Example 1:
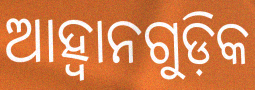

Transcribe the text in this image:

ଆହ୍ବାନଗୁଡ଼ିକ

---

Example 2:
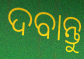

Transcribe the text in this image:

ଦବାନ୍ତୁ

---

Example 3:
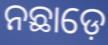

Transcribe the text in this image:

ନଛାଡ଼େ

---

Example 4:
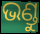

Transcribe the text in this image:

ଭଣ୍ଡୁ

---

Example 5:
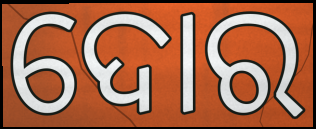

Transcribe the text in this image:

ଦୋର